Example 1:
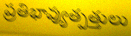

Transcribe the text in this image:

ప్రతిభావ్యుత్పత్తులు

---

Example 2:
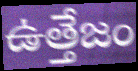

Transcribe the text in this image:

ఉత్తేజం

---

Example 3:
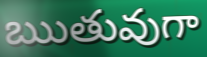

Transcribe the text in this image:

ఋతువుగా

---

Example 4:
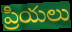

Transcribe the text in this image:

ప్రియలు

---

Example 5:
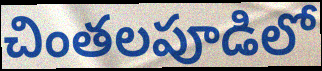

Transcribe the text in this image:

చింతలపూడిలో